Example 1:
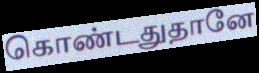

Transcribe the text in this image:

கொண்டதுதானே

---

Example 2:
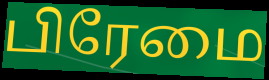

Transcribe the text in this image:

பிரேமை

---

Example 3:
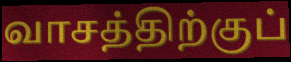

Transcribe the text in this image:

வாசத்திற்குப்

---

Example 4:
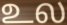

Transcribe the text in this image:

உல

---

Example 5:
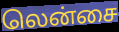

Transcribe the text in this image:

லென்சை